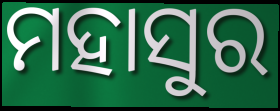
ମହାସୁର